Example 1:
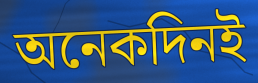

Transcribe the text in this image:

অনেকদিনই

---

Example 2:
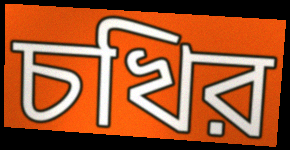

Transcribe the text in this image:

চখির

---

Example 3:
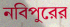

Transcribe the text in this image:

নবিপুরের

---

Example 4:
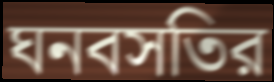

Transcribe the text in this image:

ঘনবসতির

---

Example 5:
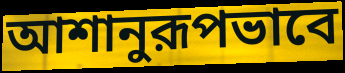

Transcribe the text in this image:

আশানুরূপভাবে